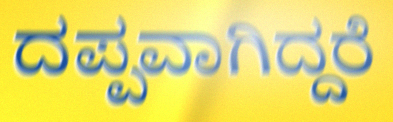
ದಪ್ಪವಾಗಿದ್ದರೆ